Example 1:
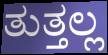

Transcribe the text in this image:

ತುತ್ತಲ್ಲ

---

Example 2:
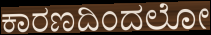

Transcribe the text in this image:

ಕಾರಣದಿಂದಲೋ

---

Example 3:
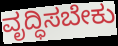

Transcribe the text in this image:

ವೃದ್ಧಿಸಬೇಕು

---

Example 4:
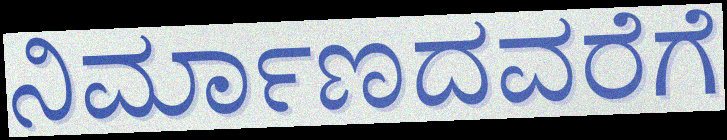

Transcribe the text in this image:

ನಿರ್ಮಾಣದವರೆಗೆ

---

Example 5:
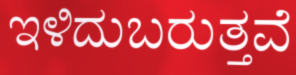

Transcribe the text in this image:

ಇಳಿದುಬರುತ್ತವೆ